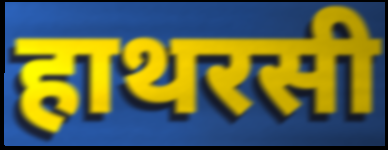
हाथरसी